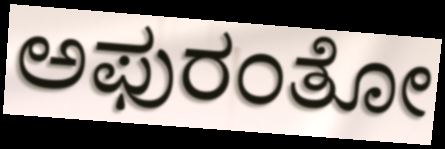
ಅಫುರಂತೋ